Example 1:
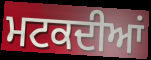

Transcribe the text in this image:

ਮਟਕਦੀਆਂ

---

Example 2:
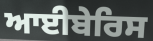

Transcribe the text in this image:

ਆਈਬੇਰਿਸ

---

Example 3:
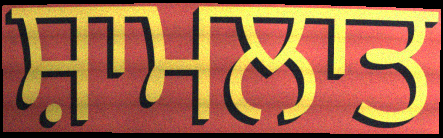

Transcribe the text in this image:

ਸ਼ਾਮਲਾਤ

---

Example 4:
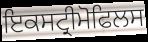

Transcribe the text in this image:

ਇਕਸਟ੍ਰੀਮੋਫਿਲਸ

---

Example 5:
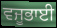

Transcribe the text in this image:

ਵਜੂਭਾਈ